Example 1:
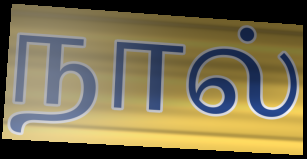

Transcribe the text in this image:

நால்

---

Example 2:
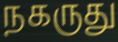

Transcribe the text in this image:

நகருது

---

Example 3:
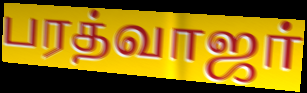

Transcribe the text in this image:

பரத்வாஜர்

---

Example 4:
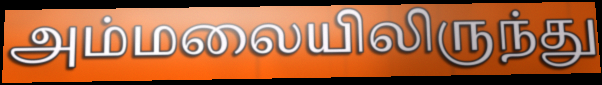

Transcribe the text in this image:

அம்மலையிலிருந்து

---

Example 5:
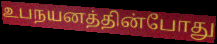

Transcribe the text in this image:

உபநயனத்தின்போது